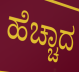
ಹೆಚ್ಚಾದ